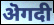
ऄगदी